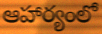
ఆహార్యంలో